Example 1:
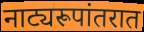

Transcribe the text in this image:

नाट्यरूपांतरात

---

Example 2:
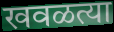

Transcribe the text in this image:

खवळत्या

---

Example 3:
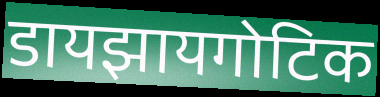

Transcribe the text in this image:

डायझायगोटिक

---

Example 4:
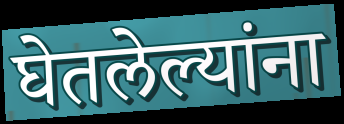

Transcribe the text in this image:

घेतलेल्यांना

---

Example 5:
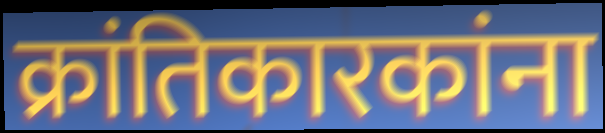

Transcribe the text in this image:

क्रांतिकारकांना